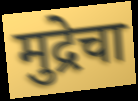
मुद्रेचा